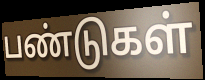
பண்டுகள்